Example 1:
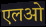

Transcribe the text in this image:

एलओ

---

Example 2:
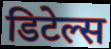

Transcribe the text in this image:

डिटेल्स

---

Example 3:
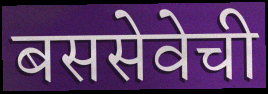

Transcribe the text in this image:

बससेवेची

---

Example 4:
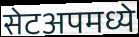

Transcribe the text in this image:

सेटअपमध्ये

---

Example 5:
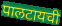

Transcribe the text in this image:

पालटायची